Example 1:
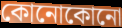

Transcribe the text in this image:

কোনোকোনো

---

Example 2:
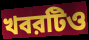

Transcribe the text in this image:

খবরটিও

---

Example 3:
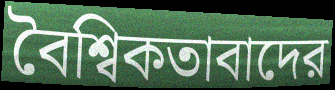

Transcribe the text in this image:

বৈশ্বিকতাবাদের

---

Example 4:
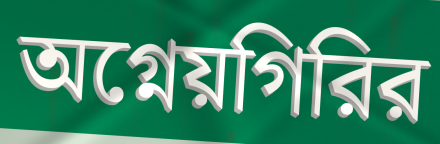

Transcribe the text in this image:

অগ্নেয়গিরির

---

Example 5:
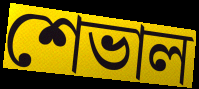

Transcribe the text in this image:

শেভাল